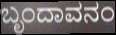
ಬೃಂದಾವನಂ